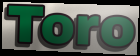
Toro